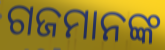
ଗଜମାନଙ୍କ